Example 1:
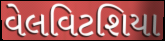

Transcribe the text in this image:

વેલવિટશિયા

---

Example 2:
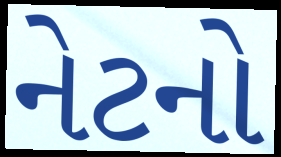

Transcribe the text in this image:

નેટનો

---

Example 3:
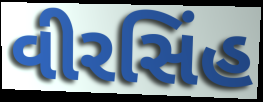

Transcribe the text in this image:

વીરસિંહ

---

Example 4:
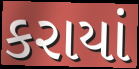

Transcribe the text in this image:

કરાયાં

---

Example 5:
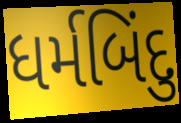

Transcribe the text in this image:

ધર્મબિંદુ